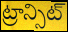
ట్రాన్సిట్